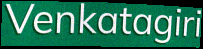
Venkatagiri